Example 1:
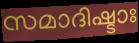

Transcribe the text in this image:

സമാദിഷ്ടാഃ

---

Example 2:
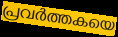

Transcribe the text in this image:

പ്രവർത്തകയെ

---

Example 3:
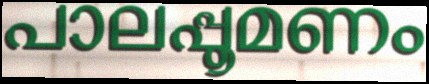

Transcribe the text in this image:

പാലപ്പൂമണം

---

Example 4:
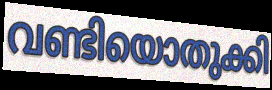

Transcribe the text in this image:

വണ്ടിയൊതുക്കി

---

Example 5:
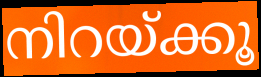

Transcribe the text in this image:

നിറയ്ക്കൂ